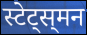
स्टेट्स्‌मन